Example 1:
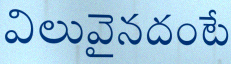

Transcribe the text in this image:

విలువైనదంటే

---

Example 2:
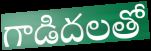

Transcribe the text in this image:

గాడిదలతో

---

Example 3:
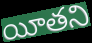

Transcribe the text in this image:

యీతని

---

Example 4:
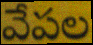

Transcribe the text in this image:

వేపల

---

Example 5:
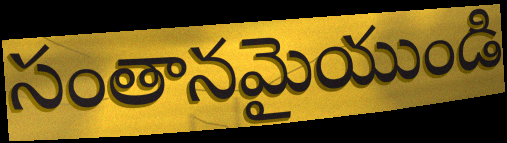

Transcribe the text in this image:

సంతానమైయుండి